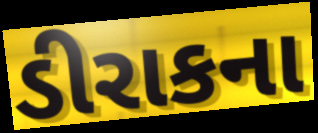
ડીરાકના